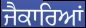
ਜੈਕਾਰਿਆਂ